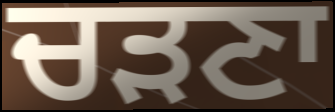
ਚੜਣਾ